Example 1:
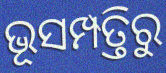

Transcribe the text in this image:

ଭୂସମ୍ପତ୍ତିରୁ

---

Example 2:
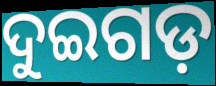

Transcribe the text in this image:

ଦୁଇଗଡ଼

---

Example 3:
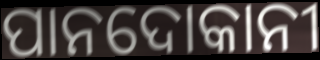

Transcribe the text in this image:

ପାନଦୋକାନୀ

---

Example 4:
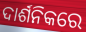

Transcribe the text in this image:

ଦାର୍ଶନିକରେ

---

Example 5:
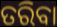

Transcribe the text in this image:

ତରିବା